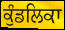
ਕੁੰਡਲਿਕਾ